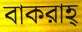
বাকরাহ্